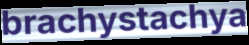
brachystachya